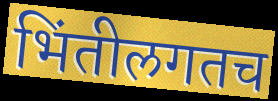
भिंतीलगतच